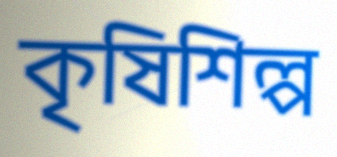
কৃষিশিল্প